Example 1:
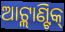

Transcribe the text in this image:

ଆଟ୍ଲାଣ୍ଟିକ୍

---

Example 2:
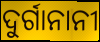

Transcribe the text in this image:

ଦୁର୍ଗାନାନୀ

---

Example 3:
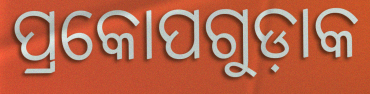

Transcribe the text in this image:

ପ୍ରକୋପଗୁଡ଼ାକ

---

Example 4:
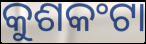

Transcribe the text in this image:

କୁଶକଂଟା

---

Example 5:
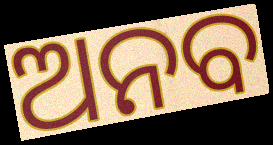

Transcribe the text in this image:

ଅନବ